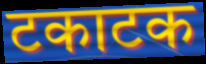
टकाटक